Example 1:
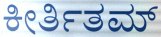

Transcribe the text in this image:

ಕೀರ್ತಿತಮ್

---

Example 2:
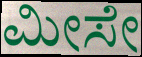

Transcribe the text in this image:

ಮೀಸೇ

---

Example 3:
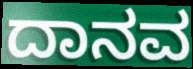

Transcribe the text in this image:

ದಾನವ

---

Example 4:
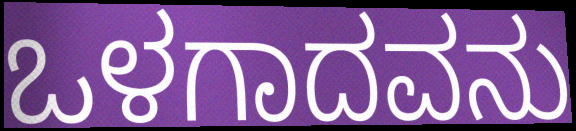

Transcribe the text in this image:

ಒಳಗಾದವನು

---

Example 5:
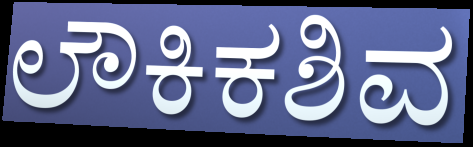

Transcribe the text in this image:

ಲೌಕಿಕಶಿವ